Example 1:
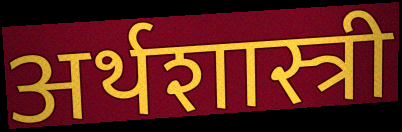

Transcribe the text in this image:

अर्थशास्त्री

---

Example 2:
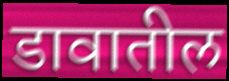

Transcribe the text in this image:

डावातील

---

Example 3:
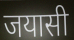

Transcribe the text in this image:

जयासी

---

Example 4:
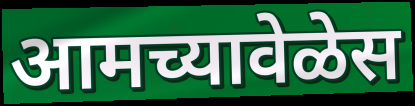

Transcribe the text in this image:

आमच्यावेळेस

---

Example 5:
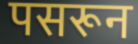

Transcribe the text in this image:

पसरून